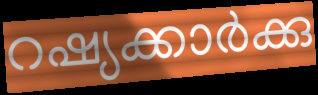
റഷ്യക്കാർക്കു